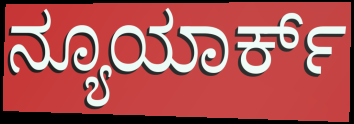
ನ್ಯೂಯಾರ್ಕ್